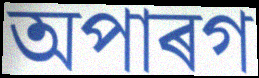
অপাৰগ